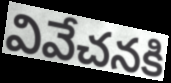
వివేచనకి